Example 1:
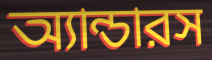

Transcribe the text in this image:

অ্যান্ডারস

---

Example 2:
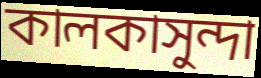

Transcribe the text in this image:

কালকাসুন্দা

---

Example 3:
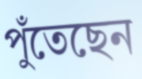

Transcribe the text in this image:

পুঁতেছেন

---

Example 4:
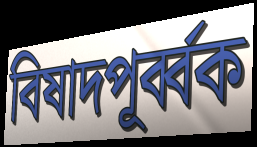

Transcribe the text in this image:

বিষাদপূর্ব্বক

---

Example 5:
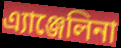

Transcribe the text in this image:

এ্যাঞ্জেলিনা